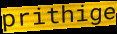
prithige